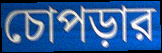
চোপড়ার